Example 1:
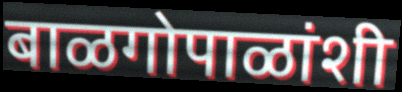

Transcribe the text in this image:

बाळगोपाळांशी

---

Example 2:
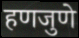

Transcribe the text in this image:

हणजुणे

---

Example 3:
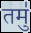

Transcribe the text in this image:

तमु॑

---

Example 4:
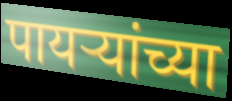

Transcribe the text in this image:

पायर्‍यांच्या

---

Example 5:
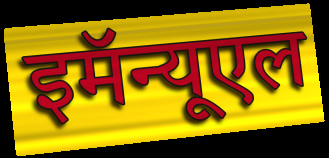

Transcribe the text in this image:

इमॅन्यूएल